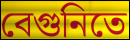
বেগুনিতে